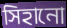
সিহানো